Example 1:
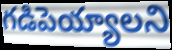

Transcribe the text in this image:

గడిపెయ్యాలని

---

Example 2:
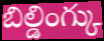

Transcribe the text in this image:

బిల్డింగ్కు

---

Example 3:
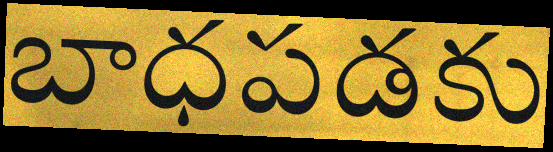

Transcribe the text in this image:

బాధపడకు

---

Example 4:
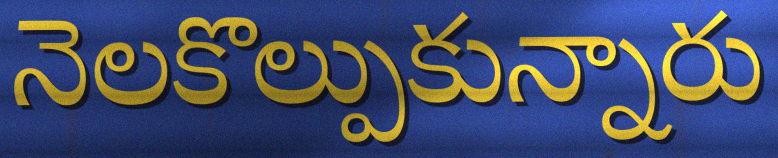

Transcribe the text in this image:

నెలకొల్పుకున్నారు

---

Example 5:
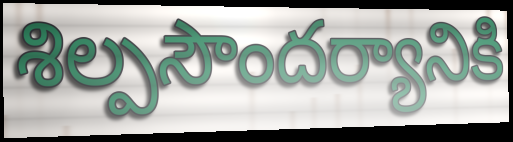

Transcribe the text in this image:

శిల్పసౌందర్యానికి